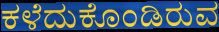
ಕಳೆದುಕೊಂಡಿರುವ